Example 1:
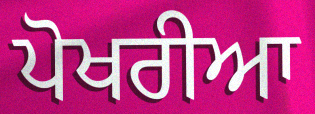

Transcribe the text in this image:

ਪੋਖਰੀਆ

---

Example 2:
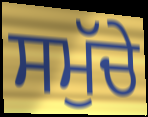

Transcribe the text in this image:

ਸਮੁੱਚੇ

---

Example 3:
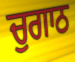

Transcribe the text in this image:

ਚੁਗਾਠ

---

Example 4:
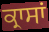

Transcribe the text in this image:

ਕ੍ਰਾਸਾਂ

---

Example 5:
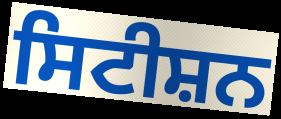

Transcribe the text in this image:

ਸਿਟੀਸ਼ਨ